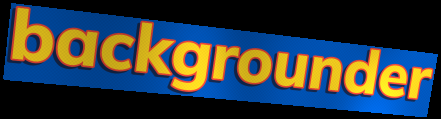
backgrounder